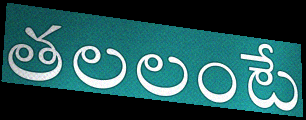
తలలంటే